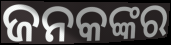
ଜନକଙ୍କର